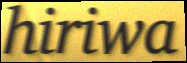
hiriwa